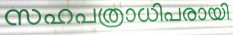
സഹപത്രാധിപരായി